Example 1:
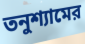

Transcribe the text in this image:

তনুশ্যামের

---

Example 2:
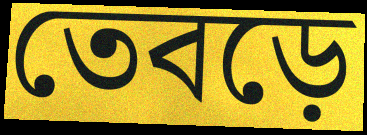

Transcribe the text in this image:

তেবড়ে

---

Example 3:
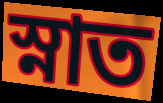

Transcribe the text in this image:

স্নাত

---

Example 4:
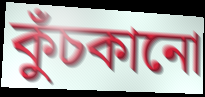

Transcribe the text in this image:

কুঁচকানো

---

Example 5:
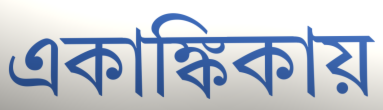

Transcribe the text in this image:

একাঙ্কিকায়